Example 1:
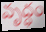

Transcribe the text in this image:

వృద్ధం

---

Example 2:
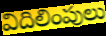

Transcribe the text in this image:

విదిలింపులు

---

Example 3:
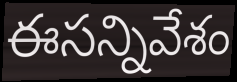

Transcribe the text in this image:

ఈసన్నివేశం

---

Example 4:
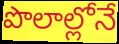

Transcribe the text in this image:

పొలాల్లోనే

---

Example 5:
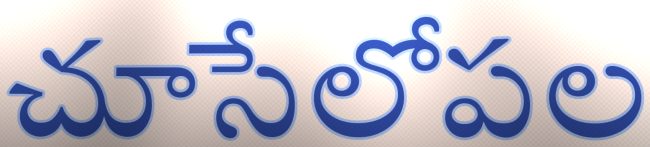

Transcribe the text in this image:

చూసేలోపల